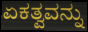
ಏಕತ್ವವನ್ನು